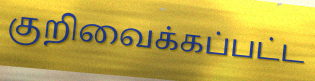
குறிவைக்கப்பட்ட